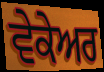
ਵੇਕੇਅਰ